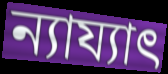
ন্যায্যাৎ